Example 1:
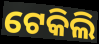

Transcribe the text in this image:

ଟେକିଲି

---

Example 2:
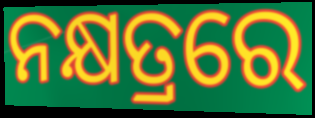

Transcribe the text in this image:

ନକ୍ଷତ୍ରରେ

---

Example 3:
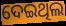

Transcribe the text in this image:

ଦେଇଥିଲ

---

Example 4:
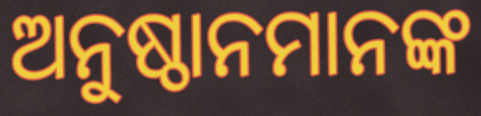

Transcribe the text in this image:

ଅନୁଷ୍ଠାନମାନଙ୍କ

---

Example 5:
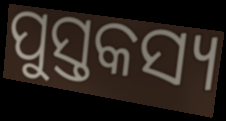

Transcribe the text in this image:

ପୁସ୍ତକସ୍ୟ